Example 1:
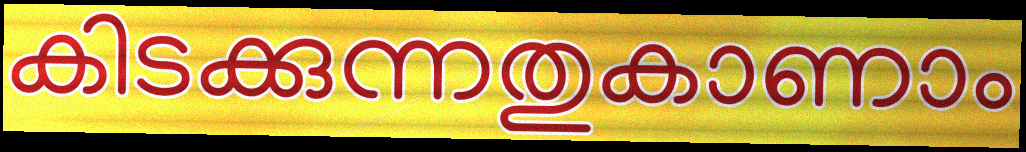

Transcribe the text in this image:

കിടക്കുന്നതുകാണാം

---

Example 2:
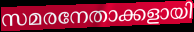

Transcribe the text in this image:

സമരനേതാക്കളായി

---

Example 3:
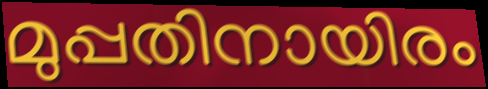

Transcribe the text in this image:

മുപ്പതിനായിരം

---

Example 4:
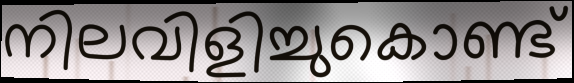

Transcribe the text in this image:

നിലവിളിച്ചുകൊണ്ട്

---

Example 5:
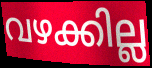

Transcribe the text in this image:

വഴക്കില്ല